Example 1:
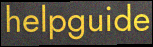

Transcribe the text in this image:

helpguide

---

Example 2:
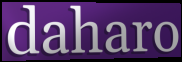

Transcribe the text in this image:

daharo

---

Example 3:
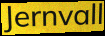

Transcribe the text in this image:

Jernvall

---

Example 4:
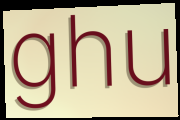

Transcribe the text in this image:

ghu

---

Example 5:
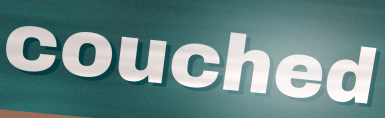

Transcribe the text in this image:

couched